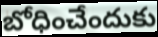
బోధించేందుకు